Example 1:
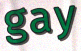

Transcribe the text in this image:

gay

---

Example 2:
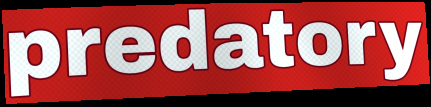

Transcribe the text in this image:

predatory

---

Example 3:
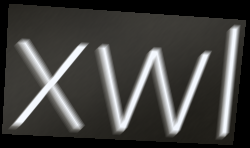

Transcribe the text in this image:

xwl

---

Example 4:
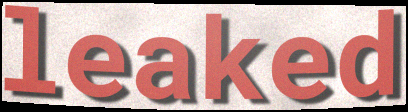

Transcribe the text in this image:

leaked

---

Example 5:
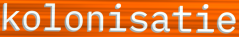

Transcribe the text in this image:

kolonisatie